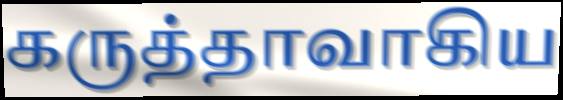
கருத்தாவாகிய